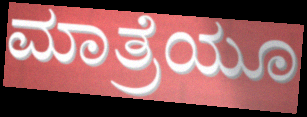
ಮಾತ್ರೆಯೂ